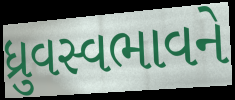
ધ્રુવસ્વભાવને